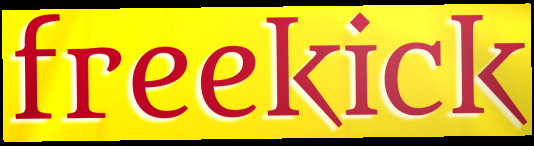
freekick